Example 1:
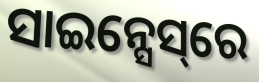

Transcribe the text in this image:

ସାଇନ୍ସେସ୍‌ରେ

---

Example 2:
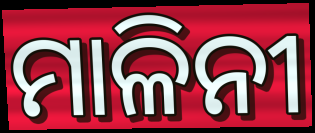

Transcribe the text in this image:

ମାଳିନୀ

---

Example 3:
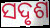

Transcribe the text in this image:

ସଦୃଶ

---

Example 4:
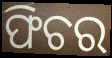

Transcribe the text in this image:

ଫିଚର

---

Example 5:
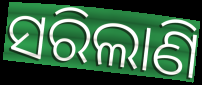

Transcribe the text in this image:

ସରିଲାଣି